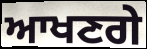
ਆਖਣਗੇ